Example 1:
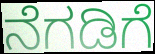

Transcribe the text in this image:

ನೆಗಡಿಗೆ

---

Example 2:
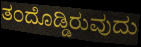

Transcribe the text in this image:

ತಂದೊಡ್ಡಿರುವುದು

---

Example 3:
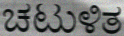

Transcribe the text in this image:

ಚಟುಳಿತ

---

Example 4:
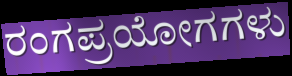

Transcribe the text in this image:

ರಂಗಪ್ರಯೋಗಗಳು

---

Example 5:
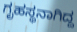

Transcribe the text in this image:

ಗೃಹಸ್ಥನಾಗಿದ್ದ